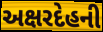
અક્ષરદેહની